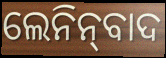
ଲେନିନ୍‌ବାଦ